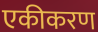
एकीकरण